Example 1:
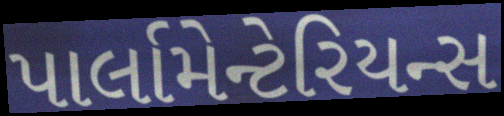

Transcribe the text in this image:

પાર્લામેન્ટેરિયન્સ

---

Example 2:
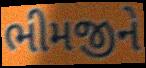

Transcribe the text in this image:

ભીમજીને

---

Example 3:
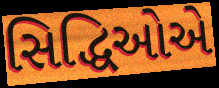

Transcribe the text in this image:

સિદ્ધિઓએ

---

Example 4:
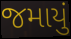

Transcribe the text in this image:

જમાયું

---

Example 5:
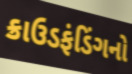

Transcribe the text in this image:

ક્રાઉડફંડિંગનો